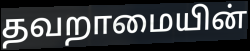
தவறாமையின்